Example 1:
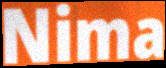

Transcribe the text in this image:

Nima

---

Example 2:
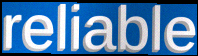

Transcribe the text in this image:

reliable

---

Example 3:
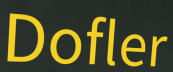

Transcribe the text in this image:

Dofler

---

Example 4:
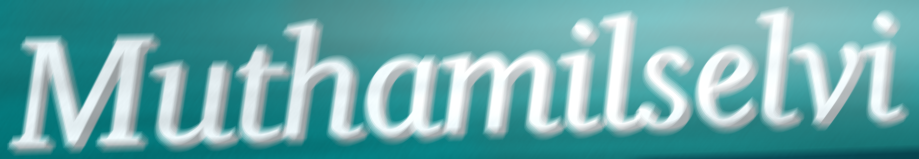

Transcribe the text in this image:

Muthamilselvi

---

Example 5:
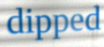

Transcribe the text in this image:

dipped